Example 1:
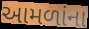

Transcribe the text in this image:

આમળાંના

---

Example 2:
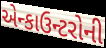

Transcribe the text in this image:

એન્કાઉન્ટરોની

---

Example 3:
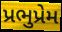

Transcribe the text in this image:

પ્રભુપ્રેમ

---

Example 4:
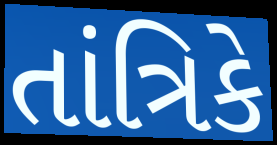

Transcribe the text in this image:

તાંત્રિકે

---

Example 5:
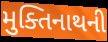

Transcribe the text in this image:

મુક્તિનાથની